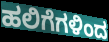
ಹಲಿಗೆಗಳಿಂದ